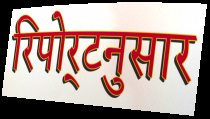
रिपोर्टनुसार